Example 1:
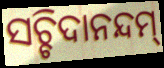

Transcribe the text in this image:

ସଚ୍ଚିଦାନନ୍ଦମ୍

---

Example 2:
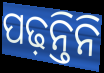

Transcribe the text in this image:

ପଢ଼ନ୍ତିନି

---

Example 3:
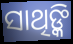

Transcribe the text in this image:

ସାଥିଙ୍କି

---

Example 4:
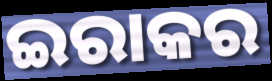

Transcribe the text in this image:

ଇରାକର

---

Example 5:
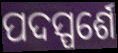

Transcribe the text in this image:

ପଦସ୍ପର୍ଶେ